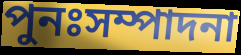
পুনঃসম্পাদনা